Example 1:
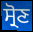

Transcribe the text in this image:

ਸ੍ਰੋਣ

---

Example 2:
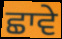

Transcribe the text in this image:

ਛਾਵੇ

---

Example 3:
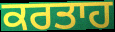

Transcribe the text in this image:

ਕਰਤਾਹ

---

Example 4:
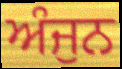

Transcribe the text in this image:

ਅੰਜੁਨ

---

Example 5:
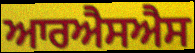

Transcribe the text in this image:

ਆਰਐਸਐਸ